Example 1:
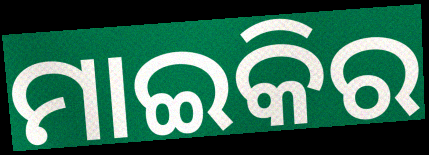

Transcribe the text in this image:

ମାଇକିର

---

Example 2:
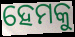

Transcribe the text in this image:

ହେମକୁ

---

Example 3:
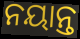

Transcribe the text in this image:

ନୟାନ୍ତ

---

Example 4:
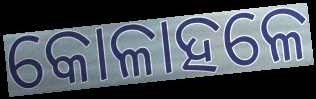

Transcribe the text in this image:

କୋଳାହଳେ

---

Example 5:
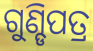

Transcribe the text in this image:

ଗୁଣ୍ଡିପତ୍ର